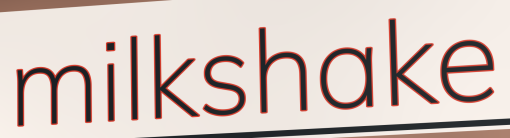
milkshake